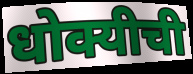
धोक्यीची